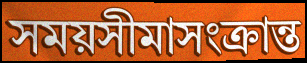
সময়সীমাসংক্রান্ত